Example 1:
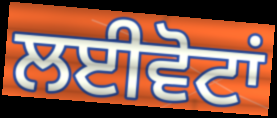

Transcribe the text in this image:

ਲਈਵੋਟਾਂ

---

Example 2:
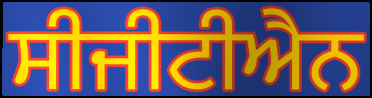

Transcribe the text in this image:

ਸੀਜੀਟੀਐਨ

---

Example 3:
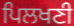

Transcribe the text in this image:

ਪਿਲਖਣੀ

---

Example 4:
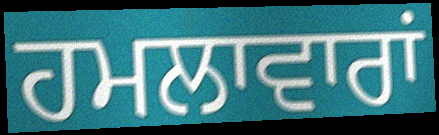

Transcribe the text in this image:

ਹਮਲਾਵਾਰਾਂ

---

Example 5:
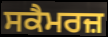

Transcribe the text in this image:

ਸਕੈਮਰਜ਼